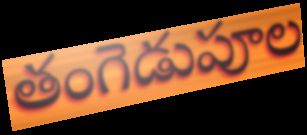
తంగెడుపూల